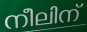
നീലിന്